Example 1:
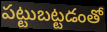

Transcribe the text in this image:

పట్టుబట్టడంతో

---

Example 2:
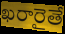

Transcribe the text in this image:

ఖరారైతే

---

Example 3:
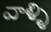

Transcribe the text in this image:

వాళ్ళి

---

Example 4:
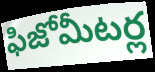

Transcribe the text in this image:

ఫిజోమీటర్ల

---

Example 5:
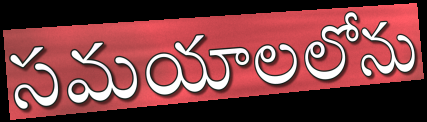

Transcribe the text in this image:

సమయాలలోను